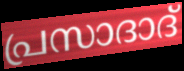
പ്രസാദാദ്